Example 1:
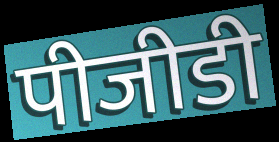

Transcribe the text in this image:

पीजीडी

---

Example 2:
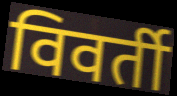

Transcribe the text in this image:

विवर्ती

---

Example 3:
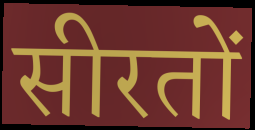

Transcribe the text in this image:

सीरतों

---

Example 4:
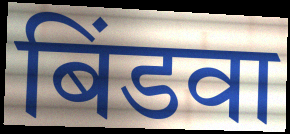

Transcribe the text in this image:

बिंडवा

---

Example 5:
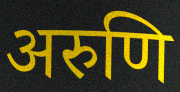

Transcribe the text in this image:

अरुणि